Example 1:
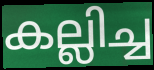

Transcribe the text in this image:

കല്ലിച്ച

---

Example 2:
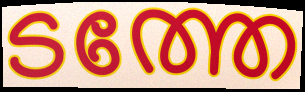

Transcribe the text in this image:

ടത്തേ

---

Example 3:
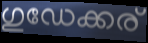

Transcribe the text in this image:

ഗുഡേക്കര്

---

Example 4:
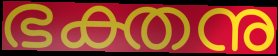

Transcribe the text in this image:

ഭക്തനു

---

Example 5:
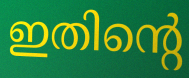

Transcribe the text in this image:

ഇതിന്റെ